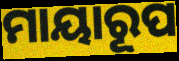
ମାୟାରୂପ